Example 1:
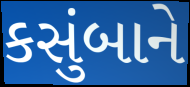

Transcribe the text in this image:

કસુંબાને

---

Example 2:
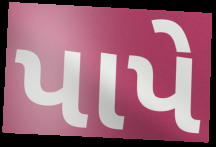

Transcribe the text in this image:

પાપે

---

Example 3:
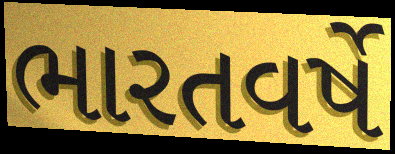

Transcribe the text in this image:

ભારતવર્ષે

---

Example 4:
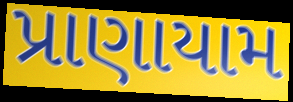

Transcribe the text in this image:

પ્રાણાયામ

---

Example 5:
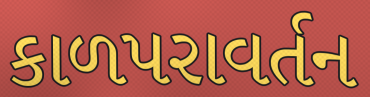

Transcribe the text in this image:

કાળપરાવર્તન